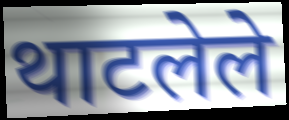
थाटलेले